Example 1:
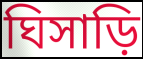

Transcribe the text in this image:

ঘিসাড়ি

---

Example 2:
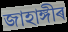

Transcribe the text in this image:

জাহাঙ্গীৰ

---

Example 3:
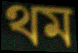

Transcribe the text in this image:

থম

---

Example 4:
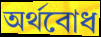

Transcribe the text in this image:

অৰ্থবোধ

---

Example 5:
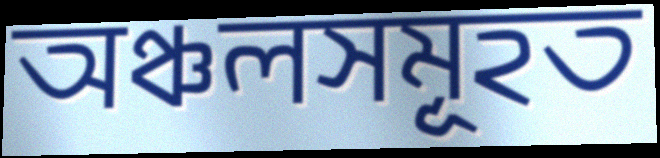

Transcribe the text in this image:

অঞ্চলসমূহত